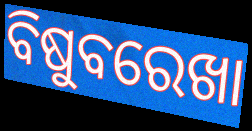
ବିଷୁବରେଖା